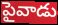
పైవాడు